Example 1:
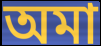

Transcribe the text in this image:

অমা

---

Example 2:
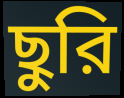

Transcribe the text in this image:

ছুরি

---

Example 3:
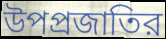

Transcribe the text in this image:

উপপ্রজাতির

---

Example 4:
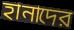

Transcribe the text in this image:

হানাদের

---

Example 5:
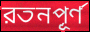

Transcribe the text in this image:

রতনপূর্ণ